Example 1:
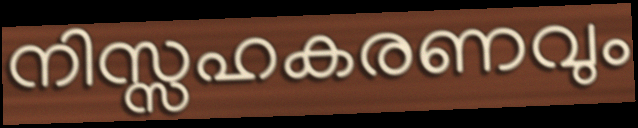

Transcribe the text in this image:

നിസ്സഹകരണവും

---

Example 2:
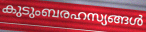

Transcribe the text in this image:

കുടുംബരഹസ്യങ്ങൾ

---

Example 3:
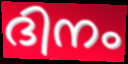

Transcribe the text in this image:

ദിനം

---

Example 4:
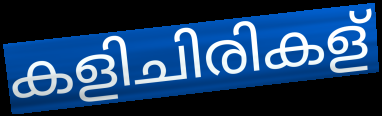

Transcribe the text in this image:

കളിചിരികള്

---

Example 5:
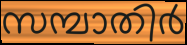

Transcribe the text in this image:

സമ്പാതിർ